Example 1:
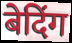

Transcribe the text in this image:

बेदिंग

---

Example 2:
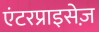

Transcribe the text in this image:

एंटरप्राइसेज़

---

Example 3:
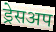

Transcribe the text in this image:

ड्रेसअप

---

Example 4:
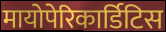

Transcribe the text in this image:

मायोपेरिकार्डिटिस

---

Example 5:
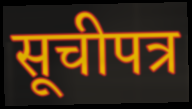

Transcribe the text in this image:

सूचीपत्र